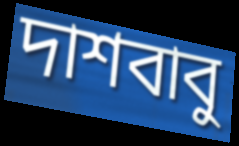
দাশবাবু